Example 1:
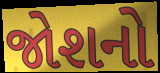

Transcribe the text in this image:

જોશનો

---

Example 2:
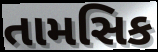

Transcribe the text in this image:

તામસિક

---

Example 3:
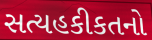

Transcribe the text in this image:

સત્યહકીકતનો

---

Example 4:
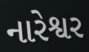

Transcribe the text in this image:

નારેશ્વર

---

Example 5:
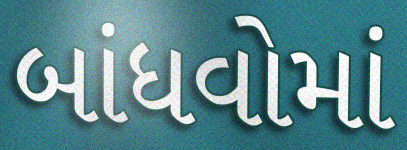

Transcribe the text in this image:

બાંધવોમાં